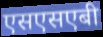
एसएसएबी